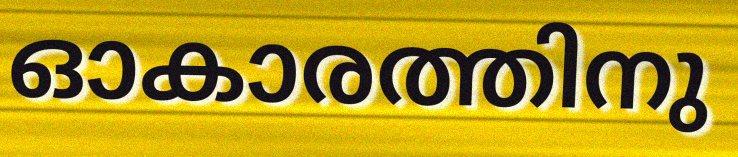
ഓകാരത്തിനു